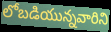
లోబడియున్నవారిని